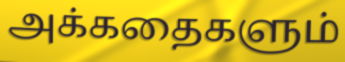
அக்கதைகளும்